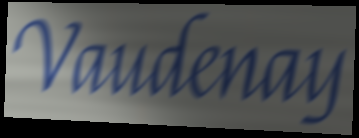
Vaudenay